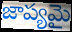
జాప్యమై